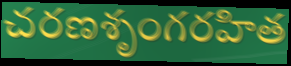
చరణశృంగరహిత